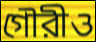
গৌরীও